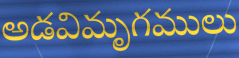
అడవిమృగములు